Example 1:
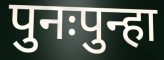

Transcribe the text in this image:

पुनःपुन्हा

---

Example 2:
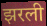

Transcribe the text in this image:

झरली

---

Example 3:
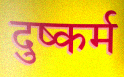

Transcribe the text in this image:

दुष्कर्म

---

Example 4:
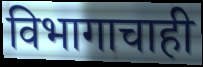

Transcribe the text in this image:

विभागाचाही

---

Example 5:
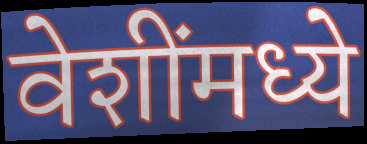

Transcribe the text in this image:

वेशींमध्ये